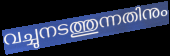
വച്ചുനടത്തുന്നതിനും